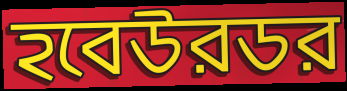
হবেউরডর